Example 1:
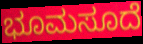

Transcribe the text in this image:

ಭೂಮಸೂದೆ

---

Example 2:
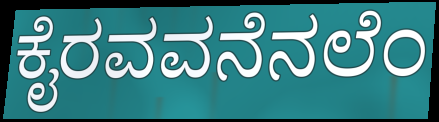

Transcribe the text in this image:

ಕೈರವವನೆನಲೆಂ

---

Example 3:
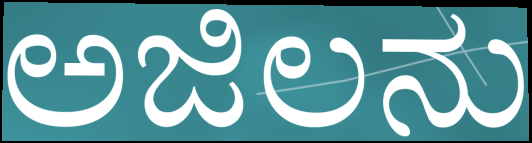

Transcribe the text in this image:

ಅಜಿಲನು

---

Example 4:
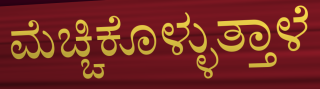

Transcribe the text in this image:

ಮೆಚ್ಚಿಕೊಳ್ಳುತ್ತಾಳೆ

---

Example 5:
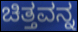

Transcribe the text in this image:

ಚಿತ್ತವನ್ನ